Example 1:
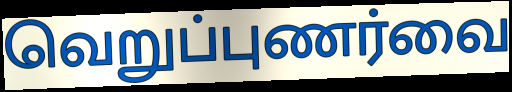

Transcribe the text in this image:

வெறுப்புணர்வை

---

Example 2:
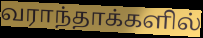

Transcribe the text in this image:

வராந்தாக்களில்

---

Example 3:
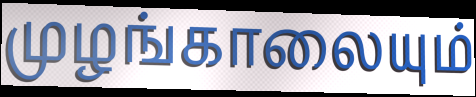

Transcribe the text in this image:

முழங்காலையும்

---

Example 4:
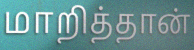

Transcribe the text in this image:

மாறித்தான்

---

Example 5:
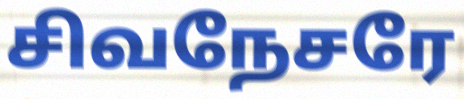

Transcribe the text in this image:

சிவநேசரே